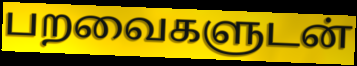
பறவைகளுடன்